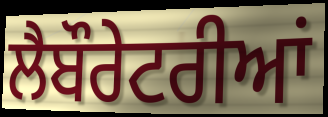
ਲੈਬੌਰੇਟਰੀਆਂ